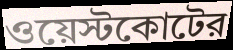
ওয়েস্টকোটের